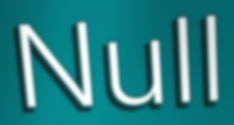
Null